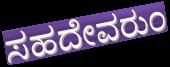
ಸಹದೇವರುಂ